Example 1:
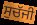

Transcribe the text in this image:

ਸੁਚੱਜੀ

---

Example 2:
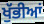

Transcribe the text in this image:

ਖੁੱਭੀਆਂ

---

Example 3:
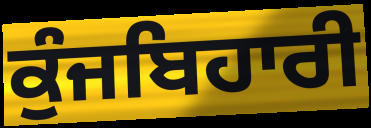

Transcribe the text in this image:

ਕੁੰਜਬਿਹਾਰੀ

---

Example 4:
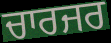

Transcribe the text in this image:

ਚਾਰਜਰ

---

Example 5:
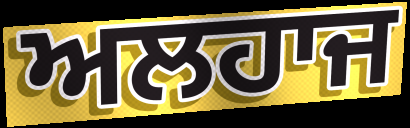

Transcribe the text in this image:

ਅਲਹਾਜ